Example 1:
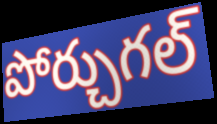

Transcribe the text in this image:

పోర్చుగల్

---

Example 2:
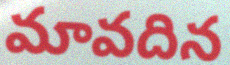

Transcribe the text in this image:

మావదిన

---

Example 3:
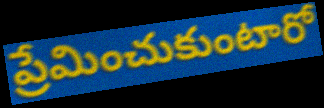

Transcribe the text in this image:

ప్రేమించుకుంటారో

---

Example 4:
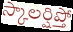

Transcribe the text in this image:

స్కాలర్షిప్తో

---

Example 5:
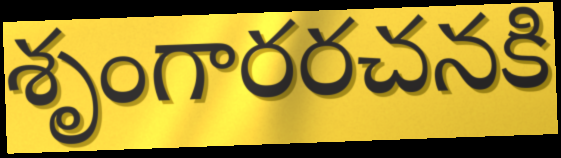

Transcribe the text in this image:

శృంగారరచనకి